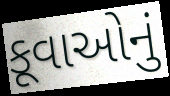
કૂવાઓનું